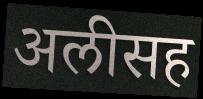
अलीसह